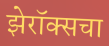
झेरॉक्सचा